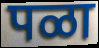
पळा